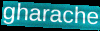
gharache